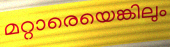
മറ്റാരെയെങ്കിലും